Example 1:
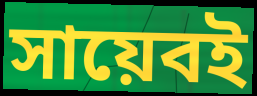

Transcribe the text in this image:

সায়েবই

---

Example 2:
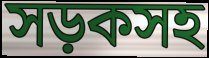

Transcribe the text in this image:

সড়কসহ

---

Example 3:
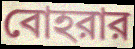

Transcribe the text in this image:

বোহরার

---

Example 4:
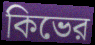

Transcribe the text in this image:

কিভের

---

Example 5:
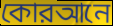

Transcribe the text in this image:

কোরআনে